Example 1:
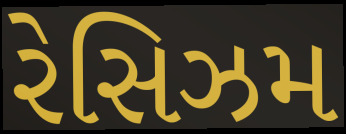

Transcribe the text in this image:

રેસિઝમ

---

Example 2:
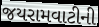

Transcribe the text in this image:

જયરામવાટીની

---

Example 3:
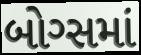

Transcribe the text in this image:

બોગ્સમાં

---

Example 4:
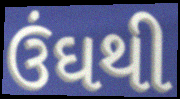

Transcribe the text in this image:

ઉંઘથી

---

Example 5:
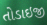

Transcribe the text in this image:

તોડાઇજી